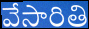
వేసారితి